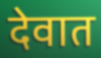
देवात